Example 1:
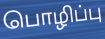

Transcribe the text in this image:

பொழிப்பு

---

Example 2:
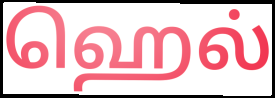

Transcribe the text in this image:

ஹெல்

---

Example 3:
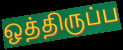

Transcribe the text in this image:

ஒத்திருப்ப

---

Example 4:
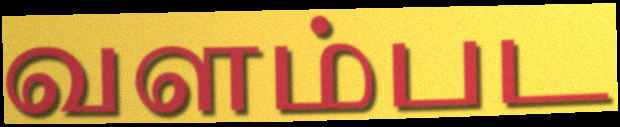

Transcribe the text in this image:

வளம்பட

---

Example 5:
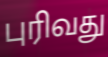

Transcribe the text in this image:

புரிவது